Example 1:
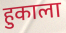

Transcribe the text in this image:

हुकाला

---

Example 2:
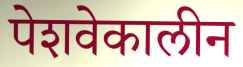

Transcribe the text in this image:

पेशवेकालीन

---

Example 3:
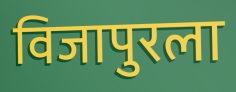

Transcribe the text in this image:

विजापुरला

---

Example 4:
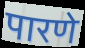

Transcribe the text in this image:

पारणे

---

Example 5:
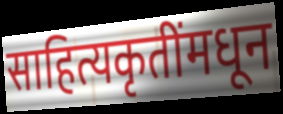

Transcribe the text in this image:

साहित्यकृतींमधून